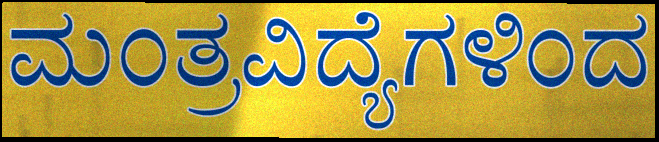
ಮಂತ್ರವಿದ್ಯೆಗಳಿಂದ